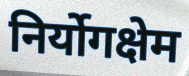
निर्योगक्षेम